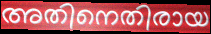
അതിനെതിരായ